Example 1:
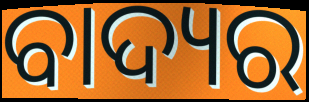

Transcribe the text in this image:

ବାଦ୍ୟର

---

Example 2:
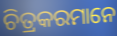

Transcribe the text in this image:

ଚିତ୍ରକରମାନେ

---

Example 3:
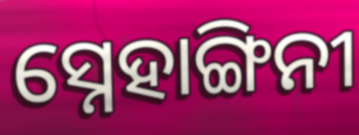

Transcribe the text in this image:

ସ୍ନେହାଙ୍ଗିନୀ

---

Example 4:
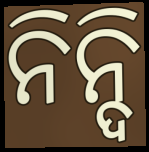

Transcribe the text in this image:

ନିନ୍ଦି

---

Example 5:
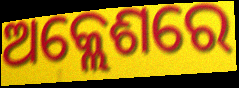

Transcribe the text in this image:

ଅକ୍ଲେଶରେ